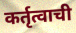
कर्तृत्वाची